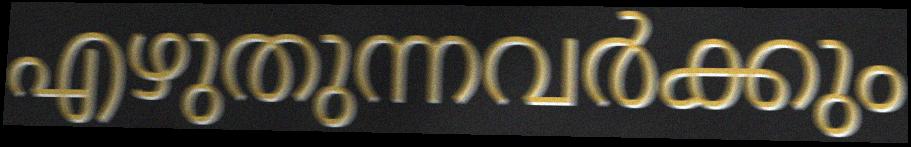
എഴുതുന്നവർക്കും